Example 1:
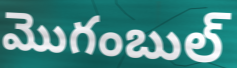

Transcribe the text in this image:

మొగంబుల్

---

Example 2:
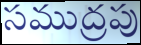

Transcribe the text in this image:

సముద్రపు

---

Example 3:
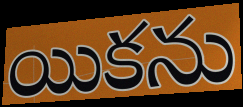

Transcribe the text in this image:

యికను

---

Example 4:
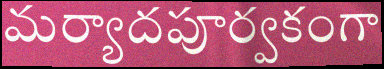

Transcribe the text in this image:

మర్యాదపూర్వకంగా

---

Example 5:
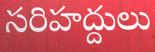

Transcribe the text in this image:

సరిహద్దులు